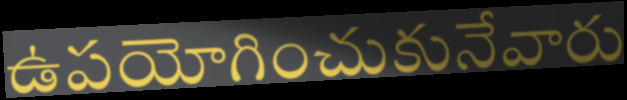
ఉపయోగించుకునేవారు